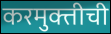
करमुक्तीची